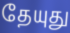
தேயுது